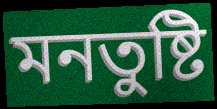
মনতুষ্টি